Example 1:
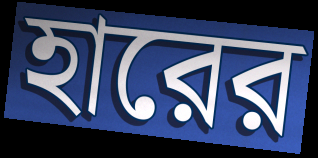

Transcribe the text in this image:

হারের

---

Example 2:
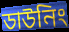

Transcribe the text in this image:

ডাউনিং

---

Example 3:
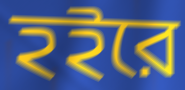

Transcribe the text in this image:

হইরে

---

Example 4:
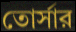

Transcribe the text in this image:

তোর্সার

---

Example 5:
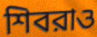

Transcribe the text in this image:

শিবরাও